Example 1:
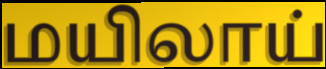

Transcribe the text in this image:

மயிலாய்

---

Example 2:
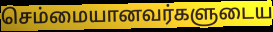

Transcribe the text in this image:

செம்மையானவர்களுடைய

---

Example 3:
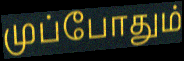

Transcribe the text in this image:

முப்போதும்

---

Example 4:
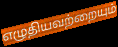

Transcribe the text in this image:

எழுதியவற்றையும்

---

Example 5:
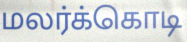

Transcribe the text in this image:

மலர்க்கொடி